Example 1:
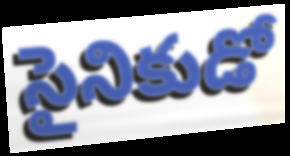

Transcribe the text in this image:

సైనికుడో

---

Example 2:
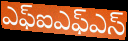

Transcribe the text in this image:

ఎఫ్ఐఎఫ్ఎస్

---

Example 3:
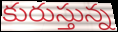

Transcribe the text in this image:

కురుస్తున్న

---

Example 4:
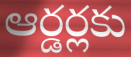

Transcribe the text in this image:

ఆర్డర్లకు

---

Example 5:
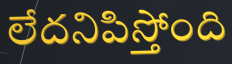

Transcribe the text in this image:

లేదనిపిస్తోంది